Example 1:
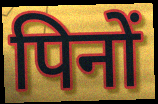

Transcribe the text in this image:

पिनों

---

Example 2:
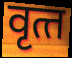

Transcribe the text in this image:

वृत्‍त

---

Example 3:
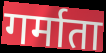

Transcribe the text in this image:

गर्माता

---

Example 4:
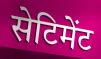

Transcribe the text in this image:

सेटिमेंट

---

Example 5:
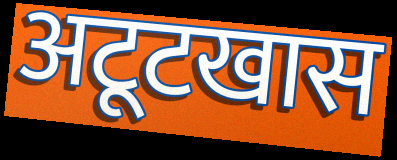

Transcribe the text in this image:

अटूटखास